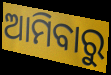
ଆମିବାରୁ